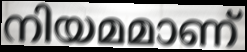
നിയമമാണ്